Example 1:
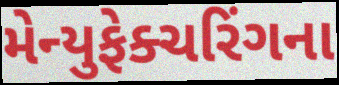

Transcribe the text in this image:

મેન્યુફેક્ચરિંગના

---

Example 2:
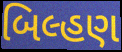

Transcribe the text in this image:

બિલ્હણ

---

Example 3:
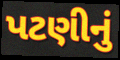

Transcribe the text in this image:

પટણીનું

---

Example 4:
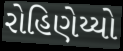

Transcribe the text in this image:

રોહિણેય્યો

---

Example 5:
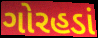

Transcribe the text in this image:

ગોરહડાં